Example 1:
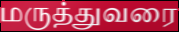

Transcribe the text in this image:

மருத்துவரை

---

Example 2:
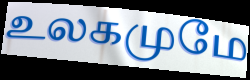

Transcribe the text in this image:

உலகமுமே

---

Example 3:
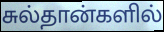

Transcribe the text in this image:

சுல்தான்களில்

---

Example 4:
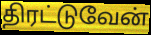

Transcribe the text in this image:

திரட்டுவேன்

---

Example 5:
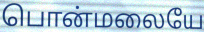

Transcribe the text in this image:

பொன்மலையே